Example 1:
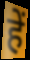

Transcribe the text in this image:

हें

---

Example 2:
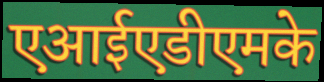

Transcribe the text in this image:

एआईएडीएमके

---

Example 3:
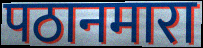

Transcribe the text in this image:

पठानमारा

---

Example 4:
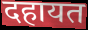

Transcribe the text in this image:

दहायत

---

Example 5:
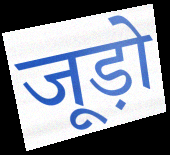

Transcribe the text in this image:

जूड़ो